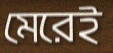
মেরেই